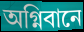
অগ্নিবানে